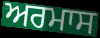
ਅਰਮਾਸ